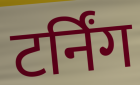
टर्निंग